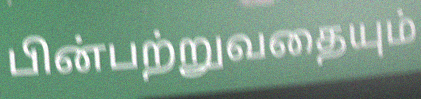
பின்பற்றுவதையும்